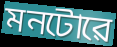
মনটোৱে